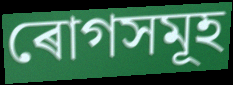
ৰোগসমূহ